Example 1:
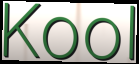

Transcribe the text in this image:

Kool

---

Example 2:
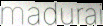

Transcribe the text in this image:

madurai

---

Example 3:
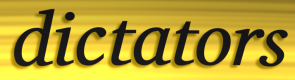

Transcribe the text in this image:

dictators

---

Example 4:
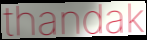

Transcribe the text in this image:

thandak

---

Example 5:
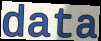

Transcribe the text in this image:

data